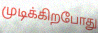
முடிக்கிறபோது